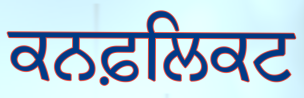
ਕਨਫ਼ਲਿਕਟ